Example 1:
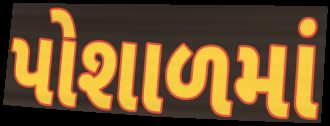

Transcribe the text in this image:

પોશાળમાં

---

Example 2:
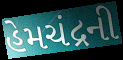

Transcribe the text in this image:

હેમચંદ્રની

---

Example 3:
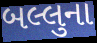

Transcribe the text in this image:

બલ્લુના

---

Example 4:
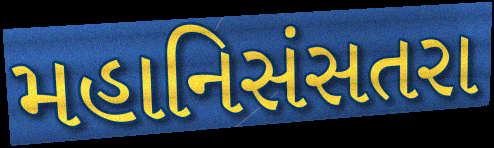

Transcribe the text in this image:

મહાનિસંસતરા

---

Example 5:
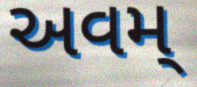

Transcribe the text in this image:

અવમ્